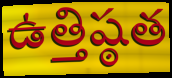
ఉత్తిష్ఠత